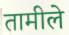
तामीले